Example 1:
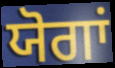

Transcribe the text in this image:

ਯੋਗਾਂ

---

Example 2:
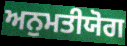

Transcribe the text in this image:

ਅਨੁਮਤੀਯੋਗ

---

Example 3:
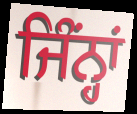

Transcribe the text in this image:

ਜਿੰਂਨ੍ਹਾਂ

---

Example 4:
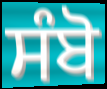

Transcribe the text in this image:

ਸੰਬੋ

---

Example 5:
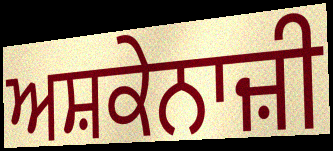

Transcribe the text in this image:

ਅਸ਼ਕੇਨਾਜ਼ੀ